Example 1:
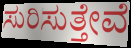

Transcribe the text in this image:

ಸುರಿಸುತ್ತೇವೆ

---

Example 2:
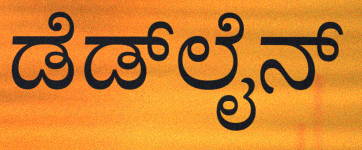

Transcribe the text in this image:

ಡೆಡ್‍ಲೈನ್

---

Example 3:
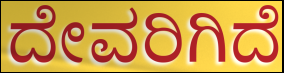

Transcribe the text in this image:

ದೇವರಿಗಿದೆ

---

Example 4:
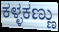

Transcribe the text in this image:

ಕಳ್ಳಕಣ್ಣು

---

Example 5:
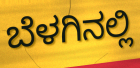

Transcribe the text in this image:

ಬೆಳಗಿನಲ್ಲಿ